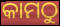
କାମଠୁ